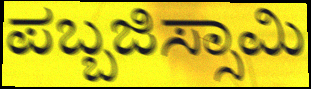
ಪಬ್ಬಜಿಸ್ಸಾಮಿ